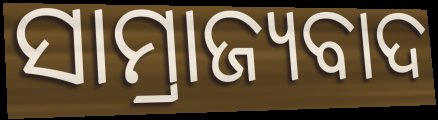
ସାମ୍ରାଜ୍ୟବାଦ